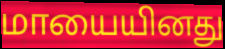
மாயையினது